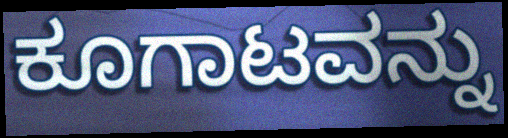
ಕೂಗಾಟವನ್ನು